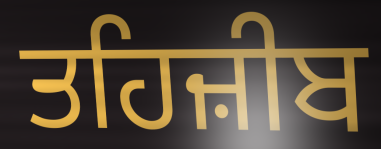
ਤਹਿਜ਼ੀਬ